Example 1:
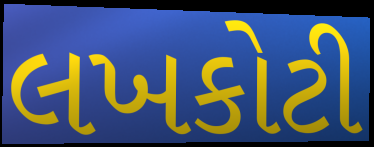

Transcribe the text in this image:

લખકોટી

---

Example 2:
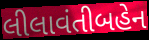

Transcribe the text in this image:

લીલાવંતીબહેન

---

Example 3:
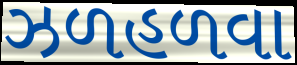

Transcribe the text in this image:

ઝળહળવા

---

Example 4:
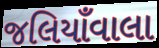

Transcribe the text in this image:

જલિયાઁવાલા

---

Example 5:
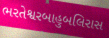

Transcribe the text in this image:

ભરતેશ્વરબાહુબલિરાસ